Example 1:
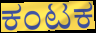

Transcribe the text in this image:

ಕಂಟಕ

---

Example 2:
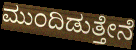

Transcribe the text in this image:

ಮುಂದಿಡುತ್ತೇನೆ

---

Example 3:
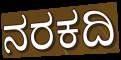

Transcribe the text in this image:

ನರಕದಿ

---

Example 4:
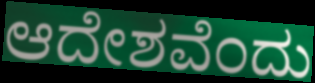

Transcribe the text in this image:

ಆದೇಶವೆಂದು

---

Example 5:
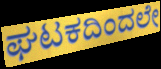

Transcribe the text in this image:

ಘಟಕದಿಂದಲೇ